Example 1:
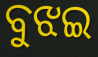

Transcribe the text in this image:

ବୁଝଇ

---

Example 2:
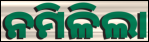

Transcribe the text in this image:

ନମିଳିଲା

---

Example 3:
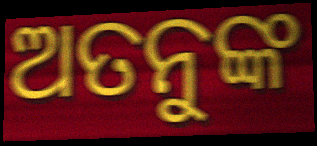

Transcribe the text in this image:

ଅତନୁଙ୍କ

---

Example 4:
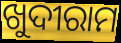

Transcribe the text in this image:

ଖୁଦୀରାମ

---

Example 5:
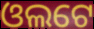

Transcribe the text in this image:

ଓଲଟେ